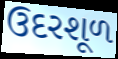
ઉદરશૂળ